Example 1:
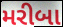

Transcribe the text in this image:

મરીબા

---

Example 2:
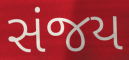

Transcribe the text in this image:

સંજય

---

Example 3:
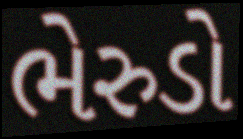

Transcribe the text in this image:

ભેરુડો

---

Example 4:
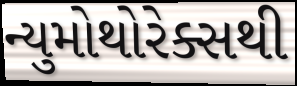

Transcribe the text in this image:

ન્યુમોથોરેક્સથી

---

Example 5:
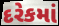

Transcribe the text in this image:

દરેકમાં